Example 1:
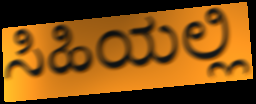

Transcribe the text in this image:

ಸಿಹಿಯಲ್ಲಿ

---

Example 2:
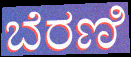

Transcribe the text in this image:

ಬೆರಣಿ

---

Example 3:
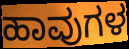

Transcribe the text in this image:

ಹಾವುಗಳ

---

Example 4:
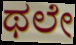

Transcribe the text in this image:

ಥಲೇ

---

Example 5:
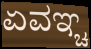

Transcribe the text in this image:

ಏವಞ್ಚ